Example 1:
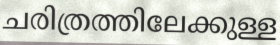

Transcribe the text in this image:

ചരിത്രത്തിലേക്കുള്ള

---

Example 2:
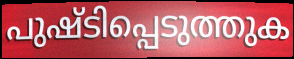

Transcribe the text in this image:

പുഷ്ടിപ്പെടുത്തുക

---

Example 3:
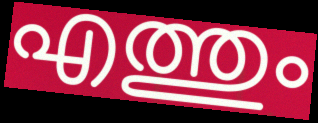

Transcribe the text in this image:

എത്തും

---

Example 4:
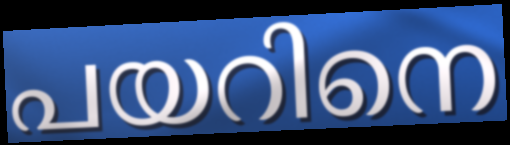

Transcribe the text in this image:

പയറിനെ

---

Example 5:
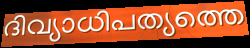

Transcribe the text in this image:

ദിവ്യാധിപത്യത്തെ